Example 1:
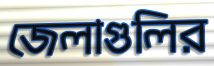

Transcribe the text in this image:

জেলাগুলির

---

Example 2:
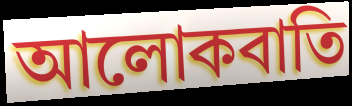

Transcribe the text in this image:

আলোকবাতি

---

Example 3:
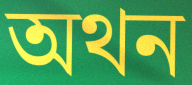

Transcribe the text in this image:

অথন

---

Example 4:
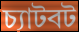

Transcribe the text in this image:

চ্যাটবট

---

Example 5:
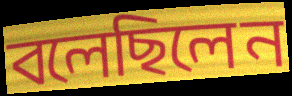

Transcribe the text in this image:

বলেছিলেন